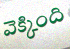
వెక్కింది